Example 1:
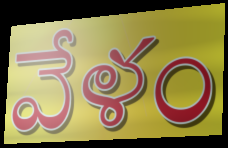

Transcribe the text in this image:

వేళం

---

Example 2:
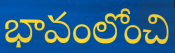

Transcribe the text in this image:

భావంలోంచి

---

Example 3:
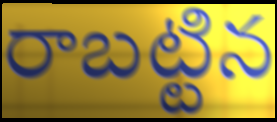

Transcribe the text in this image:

రాబట్టిన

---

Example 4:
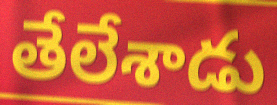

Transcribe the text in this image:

తేలేశాడు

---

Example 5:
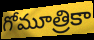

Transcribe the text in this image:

గోమూత్రికా